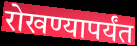
रोखण्यापर्यंत